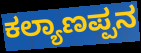
ಕಲ್ಯಾಣಪ್ಪನ